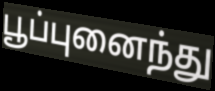
பூப்புனைந்து